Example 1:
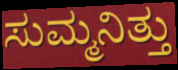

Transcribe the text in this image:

ಸುಮ್ಮನಿತ್ತು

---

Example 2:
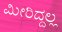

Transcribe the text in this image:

ಮೀರಿದ್ದಲ್ಲ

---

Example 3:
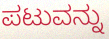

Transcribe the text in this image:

ಪಟುವನ್ನು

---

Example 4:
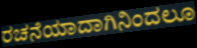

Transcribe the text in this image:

ರಚನೆಯಾದಾಗಿನಿಂದಲೂ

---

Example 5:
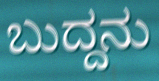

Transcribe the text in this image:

ಬುದ್ದನು